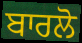
ਬਾਰਲੋ